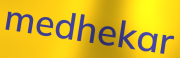
medhekar